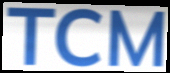
TCM